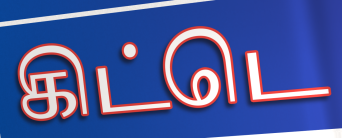
கிட்டெ